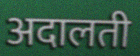
अदालती